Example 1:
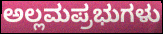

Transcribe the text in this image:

ಅಲ್ಲಮಪ್ರಭುಗಳು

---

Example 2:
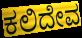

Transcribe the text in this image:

ಕಲಿದೇವ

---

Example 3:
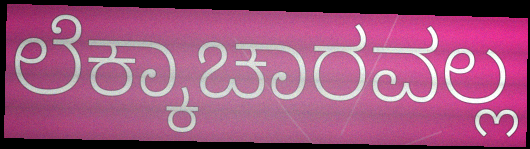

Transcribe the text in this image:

ಲೆಕ್ಕಾಚಾರವಲ್ಲ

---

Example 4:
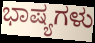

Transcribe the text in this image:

ಭಾಷ್ಯಗಳು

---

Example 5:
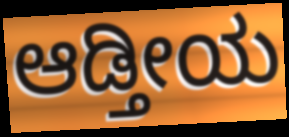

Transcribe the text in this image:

ಆಡ್ತೀಯ